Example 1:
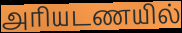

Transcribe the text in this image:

அரியடணயில்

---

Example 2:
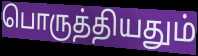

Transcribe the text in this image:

பொருத்தியதும்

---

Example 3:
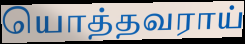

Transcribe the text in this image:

யொத்தவராய்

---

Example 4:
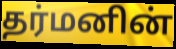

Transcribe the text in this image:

தர்மனின்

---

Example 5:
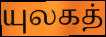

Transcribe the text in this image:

யுலகத்